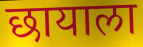
छायाला